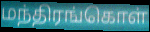
மந்திரங்கொள்